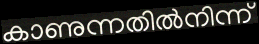
കാണുന്നതിൽനിന്ന്